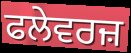
ਫਲੇਵਰਜ਼